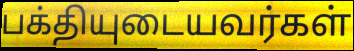
பக்தியுடையவர்கள்